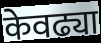
केवढ्या